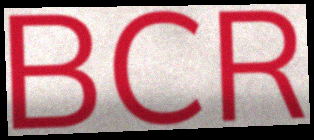
BCR